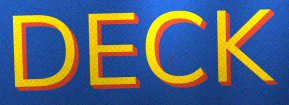
DECK